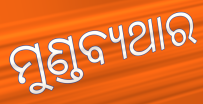
ମୁଣ୍ଡବ୍ୟଥାର